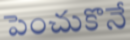
పెంచుకొనే